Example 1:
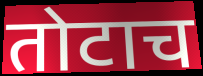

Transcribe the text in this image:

तोटाच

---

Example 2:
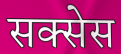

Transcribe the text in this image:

सक्सेस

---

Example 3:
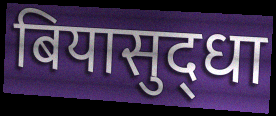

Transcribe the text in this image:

बियासुद्धा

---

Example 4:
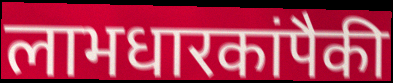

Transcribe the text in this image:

लाभधारकांपैकी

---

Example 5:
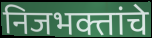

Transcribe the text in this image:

निजभक्तांचे